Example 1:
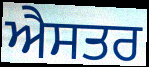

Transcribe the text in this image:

ਐਸਤਰ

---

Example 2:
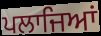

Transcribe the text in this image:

ਪਲਾਜਿਆਂ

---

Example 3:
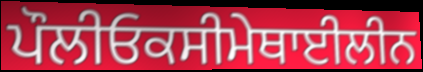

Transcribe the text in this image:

ਪੌਲੀਓਕਸੀਮੇਥਾਈਲੀਨ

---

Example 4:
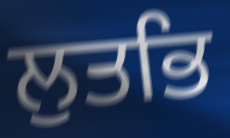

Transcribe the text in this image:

ਲੁਤਭਿ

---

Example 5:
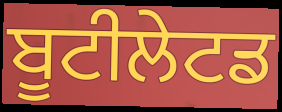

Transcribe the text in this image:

ਬੂਟੀਲੇਟਡ